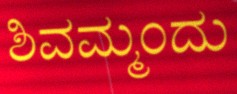
ಶಿವಮ್ಮಂದು